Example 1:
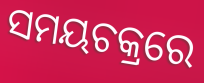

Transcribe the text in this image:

ସମୟଚକ୍ରରେ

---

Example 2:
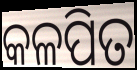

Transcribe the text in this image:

କଳପିତ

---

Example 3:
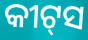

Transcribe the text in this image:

କୀଟ୍‌ସ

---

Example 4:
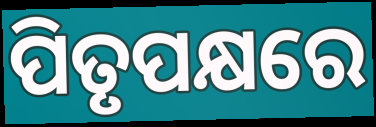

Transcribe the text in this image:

ପିତୃପକ୍ଷରେ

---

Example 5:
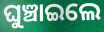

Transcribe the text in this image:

ଘୁଞ୍ଚାଇଲେ